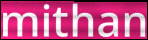
mithan